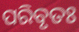
ପରିବୃତଃ